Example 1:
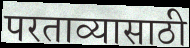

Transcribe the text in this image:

परताव्यासाठी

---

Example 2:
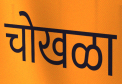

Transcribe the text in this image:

चोखळा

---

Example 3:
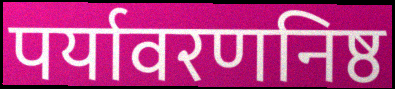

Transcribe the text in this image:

पर्यावरणनिष्ठ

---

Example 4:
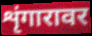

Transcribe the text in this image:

शृंगारावर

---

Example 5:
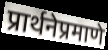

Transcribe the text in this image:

प्रार्थनेप्रमाणे